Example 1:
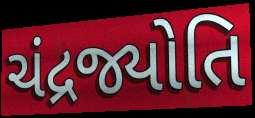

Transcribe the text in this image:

ચંદ્રજ્યોતિ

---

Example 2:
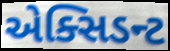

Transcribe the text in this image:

એક્સિડન્ટ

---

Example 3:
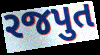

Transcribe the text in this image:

રજપુત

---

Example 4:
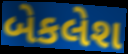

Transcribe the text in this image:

બેકલેશ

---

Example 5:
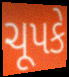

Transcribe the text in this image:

ચૂપકે